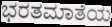
ಭರತಮಾತೆಯ